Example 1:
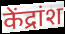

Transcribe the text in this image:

केंद्रांश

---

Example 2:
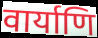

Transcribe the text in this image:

वार्याणि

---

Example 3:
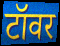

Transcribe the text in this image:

टॉवर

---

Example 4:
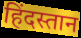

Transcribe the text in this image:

हिंदस्तान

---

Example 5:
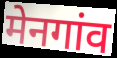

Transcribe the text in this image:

मेनगांव